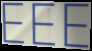
EEE